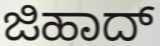
ಜಿಹಾದ್